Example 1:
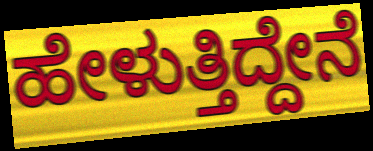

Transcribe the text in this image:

ಹೇಳುತ್ತಿದ್ದೇನೆ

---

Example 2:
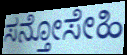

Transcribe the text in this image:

ಸನ್ತೋಸೇಹಿ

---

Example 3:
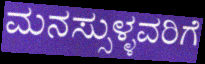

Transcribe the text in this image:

ಮನಸ್ಸುಳ್ಳವರಿಗೆ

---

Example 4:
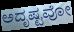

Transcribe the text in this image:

ಅದೃಷ್ಟವೋ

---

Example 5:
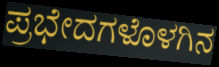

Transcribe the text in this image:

ಪ್ರಭೇದಗಳೊಳಗಿನ